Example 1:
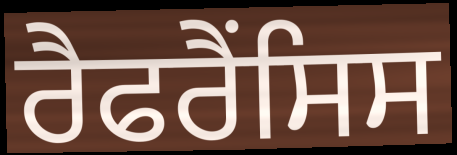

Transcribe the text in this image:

ਰੈਫਰੈਂਸਿਸ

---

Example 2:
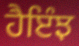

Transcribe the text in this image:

ਹੈਇੰਝ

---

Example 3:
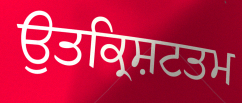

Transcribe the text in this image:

ਉਤਕ੍ਰਿਸ਼ਟਤਮ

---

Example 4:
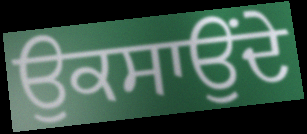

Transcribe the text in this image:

ਉਕਸਾਉਂਦੇ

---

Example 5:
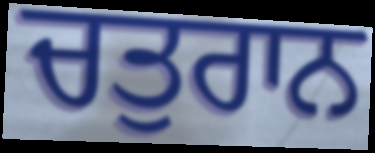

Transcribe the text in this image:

ਚਤੁਰਾਨ